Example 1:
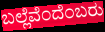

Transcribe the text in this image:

ಬಲ್ಲೆವೆಂದೆಂಬರು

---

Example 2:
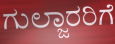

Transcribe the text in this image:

ಗುಲ್ಜಾರರಿಗೆ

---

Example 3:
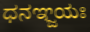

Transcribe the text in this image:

ಧನಞ್ಜಯಃ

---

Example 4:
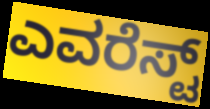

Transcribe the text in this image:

ಎವರೆಸ್ಟ್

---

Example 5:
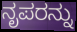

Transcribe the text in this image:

ನೃಪರನ್ನು